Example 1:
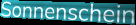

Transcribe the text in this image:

Sonnenschein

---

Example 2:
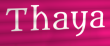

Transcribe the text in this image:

Thaya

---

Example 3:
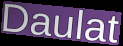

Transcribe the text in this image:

Daulat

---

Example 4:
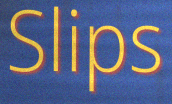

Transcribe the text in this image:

Slips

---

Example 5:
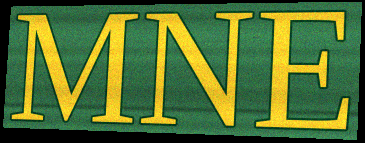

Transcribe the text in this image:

MNE